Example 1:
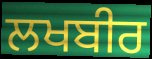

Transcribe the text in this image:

ਲਖਬੀਰ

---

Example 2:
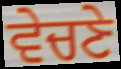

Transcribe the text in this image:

ਵੇਚਣੇ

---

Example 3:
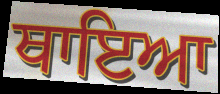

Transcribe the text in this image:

ਥਾਇਆ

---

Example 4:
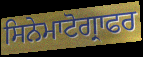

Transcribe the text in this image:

ਸਿਨੇਮਾਟੋਗ੍ਰਾਫਰ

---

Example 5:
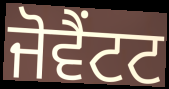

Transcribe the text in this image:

ਜੋਵੈਂਟਟ